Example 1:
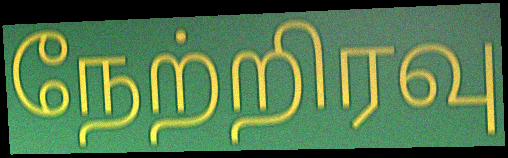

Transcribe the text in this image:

நேற்றிரவு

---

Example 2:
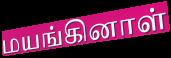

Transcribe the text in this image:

மயங்கினாள்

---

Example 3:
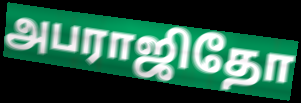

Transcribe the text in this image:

அபராஜிதோ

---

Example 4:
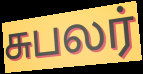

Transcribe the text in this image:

சுபலர்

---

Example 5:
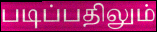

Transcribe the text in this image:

படிப்பதிலும்